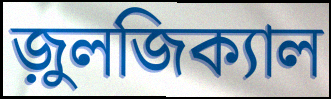
জ়ুলজিক্যাল